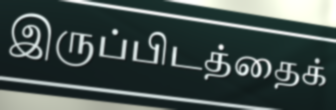
இருப்பிடத்தைக்